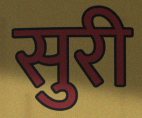
सुरी